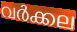
വർക്കല